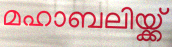
മഹാബലിയ്ക്ക്